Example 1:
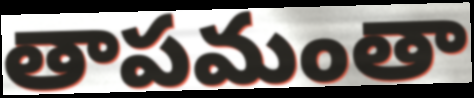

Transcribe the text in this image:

తాపమంతా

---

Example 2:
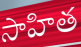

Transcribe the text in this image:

సాహిత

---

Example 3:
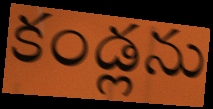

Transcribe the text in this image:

కండ్లను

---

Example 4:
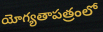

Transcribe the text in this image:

యోగ్యతాపత్రంలో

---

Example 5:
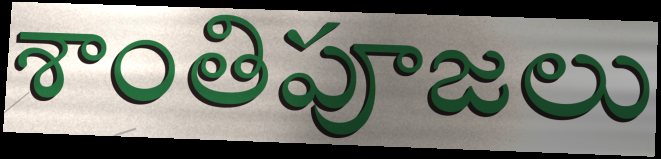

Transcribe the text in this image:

శాంతిపూజలు